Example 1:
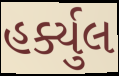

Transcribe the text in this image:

હર્ક્યુલ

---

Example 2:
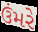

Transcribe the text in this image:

ઉંમરે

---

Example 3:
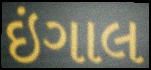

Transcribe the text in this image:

ઇંગાલ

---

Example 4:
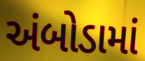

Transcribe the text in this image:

અંબોડામાં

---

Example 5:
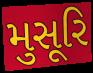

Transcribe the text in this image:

મુસૂરિ